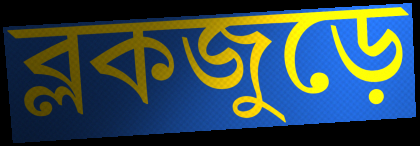
ব্লকজুড়ে